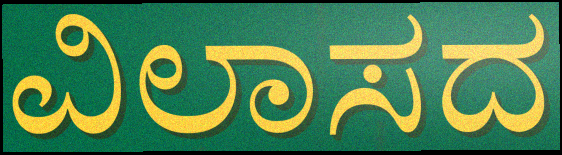
ವಿಲಾಸದ